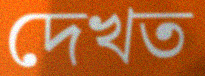
দেখত